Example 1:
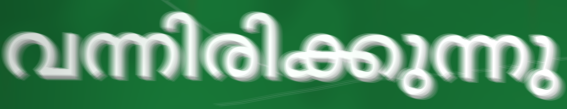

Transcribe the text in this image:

വന്നിരിക്കുന്നു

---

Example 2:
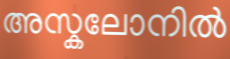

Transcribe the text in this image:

അസ്കലോനിൽ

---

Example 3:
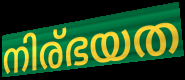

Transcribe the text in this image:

നിര്ഭയത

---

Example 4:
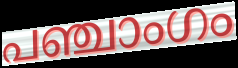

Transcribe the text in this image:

പഞ്ചാംഗം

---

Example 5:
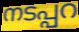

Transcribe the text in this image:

നടപ്പറ